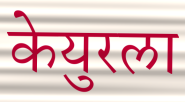
केयुरला